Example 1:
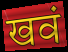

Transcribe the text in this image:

खवं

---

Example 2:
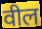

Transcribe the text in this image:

वील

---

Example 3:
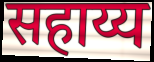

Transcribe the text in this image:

सहाय्य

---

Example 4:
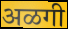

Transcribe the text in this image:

अळगी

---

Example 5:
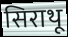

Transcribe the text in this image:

सिराथू